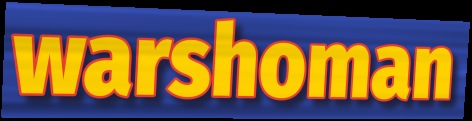
warshoman